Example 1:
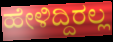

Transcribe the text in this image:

ಹೇಳಿದ್ದಿರಲ್ಲ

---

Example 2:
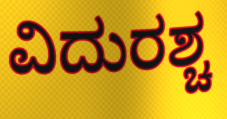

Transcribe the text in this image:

ವಿದುರಶ್ಚ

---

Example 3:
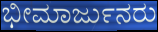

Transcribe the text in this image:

ಭೀಮಾರ್ಜುನರು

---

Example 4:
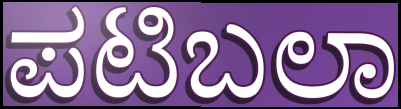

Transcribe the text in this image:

ಪಟಿಬಲಾ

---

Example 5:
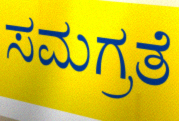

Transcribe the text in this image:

ಸಮಗ್ರತೆ